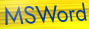
MSWord